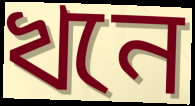
খনে